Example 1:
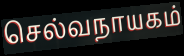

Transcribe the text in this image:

செல்வநாயகம்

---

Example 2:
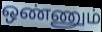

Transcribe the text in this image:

ஒண்ணும்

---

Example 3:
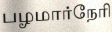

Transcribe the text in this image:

பழமார்நேரி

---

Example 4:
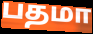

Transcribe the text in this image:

பதமா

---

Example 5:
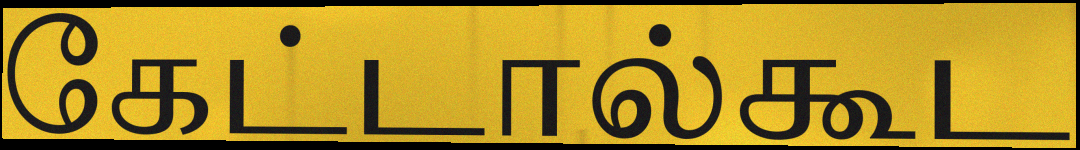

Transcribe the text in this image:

கேட்டால்கூட